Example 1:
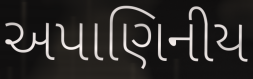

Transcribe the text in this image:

અપાણિનીય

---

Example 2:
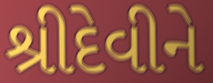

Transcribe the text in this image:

શ્રીદેવીને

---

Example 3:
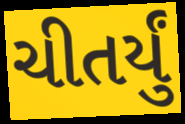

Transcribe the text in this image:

ચીતર્યું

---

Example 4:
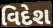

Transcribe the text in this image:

વિદેશ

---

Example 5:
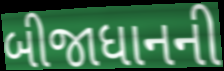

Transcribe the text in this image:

બીજાધાનની